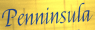
Penninsula